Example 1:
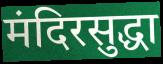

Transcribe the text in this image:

मंदिरसुद्धा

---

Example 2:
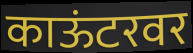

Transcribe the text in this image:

काऊंटरवर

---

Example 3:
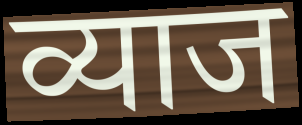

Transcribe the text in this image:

व्याज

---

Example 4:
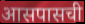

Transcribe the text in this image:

आसपासची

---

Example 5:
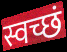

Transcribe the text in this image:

स्वच्छं